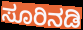
ಸೂರಿನಡಿ